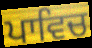
ਪਾਵਿਚ